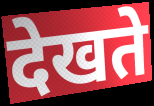
देखते